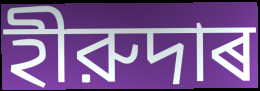
হীৰুদাৰ